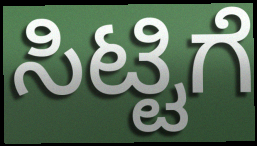
ಸಿಟ್ಟಿಗೆ